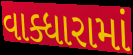
વાક્ધારામાં